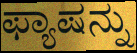
ಫ್ಯಾಷನ್ನು